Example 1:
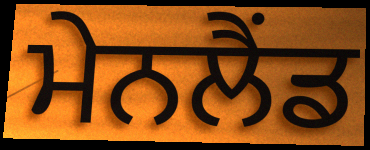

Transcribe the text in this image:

ਮੇਨਲੈਂਡ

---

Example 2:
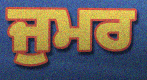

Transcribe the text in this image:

ਜੁਮਰ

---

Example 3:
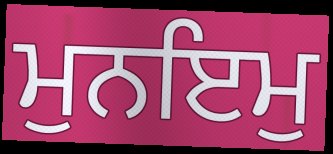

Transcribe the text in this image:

ਮੁਨਇਮੁ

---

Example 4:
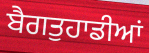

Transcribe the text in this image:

ਬੈਗਤੁਹਾਡੀਆਂ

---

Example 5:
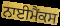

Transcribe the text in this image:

ਨਾਈਮੈਂਕਸ